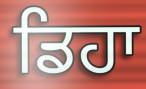
ਡਿਹਾ